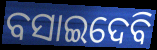
ବସାଇଦେବି